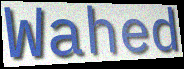
Wahed